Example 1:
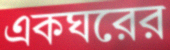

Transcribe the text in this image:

একঘরের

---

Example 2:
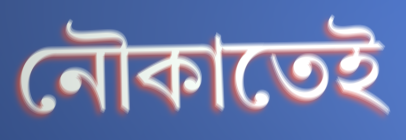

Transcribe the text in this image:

নৌকাতেই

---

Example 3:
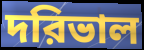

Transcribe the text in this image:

দরিভাল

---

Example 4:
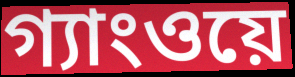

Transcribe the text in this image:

গ্যাংওয়ে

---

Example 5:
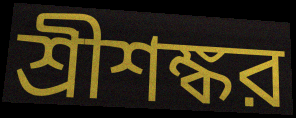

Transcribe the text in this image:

শ্রীশঙ্কর